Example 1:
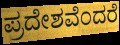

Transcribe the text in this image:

ಪ್ರದೇಶವೆಂದರೆ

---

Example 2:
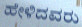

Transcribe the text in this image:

ಹೇಳಿದವರು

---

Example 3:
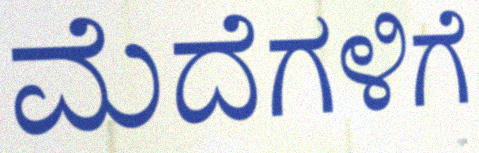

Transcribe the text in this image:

ಮೆದೆಗಳಿಗೆ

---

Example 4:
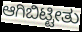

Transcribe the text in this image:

ಆಗಿಬಿಟ್ಟೀತು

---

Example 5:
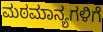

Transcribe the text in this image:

ಮಠಮಾನ್ಯಗಳಿಗೆ